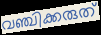
വഞ്ചിക്കരുത്